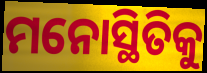
ମନୋସ୍ଥିତିକୁ